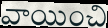
వాయించి